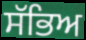
ਸੱਭਿਅ